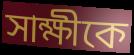
সাক্ষীকে